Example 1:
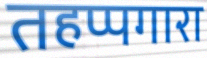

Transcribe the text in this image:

तहप्पगारा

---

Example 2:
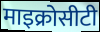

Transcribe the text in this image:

माइक्रोसीटी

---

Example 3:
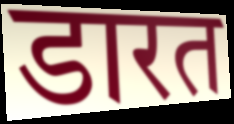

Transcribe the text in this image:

डारत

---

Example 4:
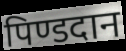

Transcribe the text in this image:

पिण्डदान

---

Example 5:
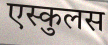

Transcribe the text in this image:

एस्कुलस